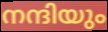
നന്ദിയും